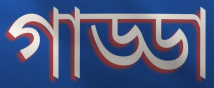
গাড্ডা